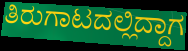
ತಿರುಗಾಟದಲ್ಲಿದ್ದಾಗ